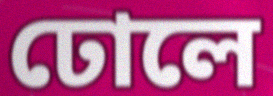
ঢোলে